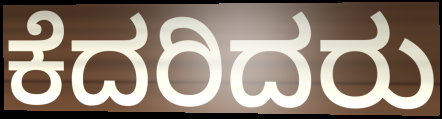
ಕೆದರಿದರು